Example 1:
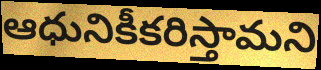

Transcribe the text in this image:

ఆధునికీకరిస్తామని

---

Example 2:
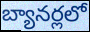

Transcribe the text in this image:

బ్యానర్లలో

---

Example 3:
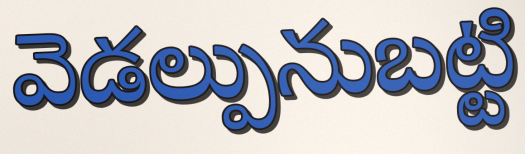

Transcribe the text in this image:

వెడల్పునుబట్టి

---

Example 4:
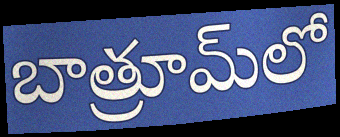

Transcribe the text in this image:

బాత్రూమ్‌లో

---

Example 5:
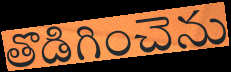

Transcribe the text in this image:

తొడిగించెను